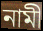
নামী